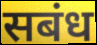
सबंध